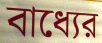
বাধ্যের